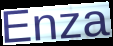
Enza